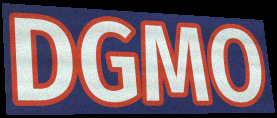
DGMO